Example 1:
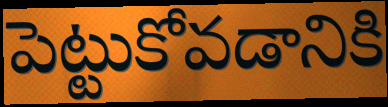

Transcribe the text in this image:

పెట్టుకోవడానికి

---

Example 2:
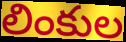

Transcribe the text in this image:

లింకుల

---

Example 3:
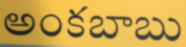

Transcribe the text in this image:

అంకబాబు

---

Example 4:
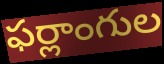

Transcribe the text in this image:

ఫర్లాంగుల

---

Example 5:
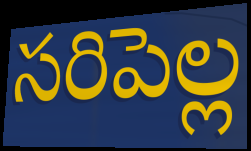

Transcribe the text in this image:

సరిపెల్ల